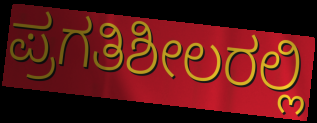
ಪ್ರಗತಿಶೀಲರಲ್ಲಿ